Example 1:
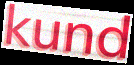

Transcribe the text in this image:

kund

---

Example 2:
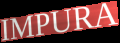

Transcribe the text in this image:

IMPURA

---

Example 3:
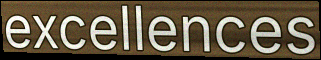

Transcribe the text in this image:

excellences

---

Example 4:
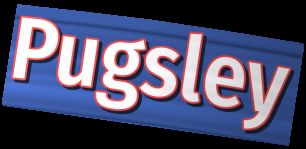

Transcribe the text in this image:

Pugsley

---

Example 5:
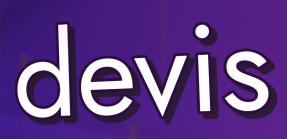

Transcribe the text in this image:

devis